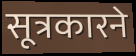
सूत्रकारने